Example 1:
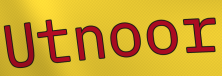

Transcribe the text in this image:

Utnoor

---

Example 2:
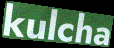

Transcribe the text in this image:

kulcha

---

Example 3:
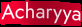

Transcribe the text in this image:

Acharyya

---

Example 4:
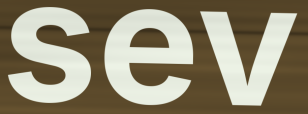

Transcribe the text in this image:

sev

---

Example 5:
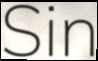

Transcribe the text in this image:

Sin